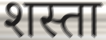
शस्ता